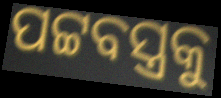
ପଟ୍ଟବସ୍ତ୍ରକୁ